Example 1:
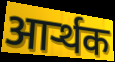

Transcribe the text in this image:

आर्र्थक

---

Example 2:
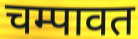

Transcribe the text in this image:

चम्पावत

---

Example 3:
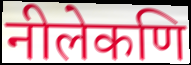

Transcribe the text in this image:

नीलेकणि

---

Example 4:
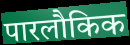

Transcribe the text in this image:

पारलौकिक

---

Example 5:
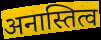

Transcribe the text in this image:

अनास्तित्व